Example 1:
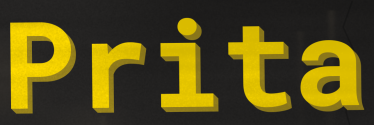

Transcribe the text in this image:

Prita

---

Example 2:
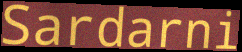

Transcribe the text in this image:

Sardarni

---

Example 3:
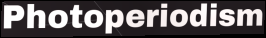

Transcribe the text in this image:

Photoperiodism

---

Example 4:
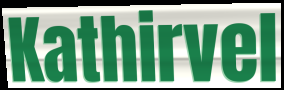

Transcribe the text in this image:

Kathirvel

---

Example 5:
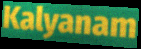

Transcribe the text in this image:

Kalyanam